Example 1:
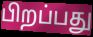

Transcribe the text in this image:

பிறப்பது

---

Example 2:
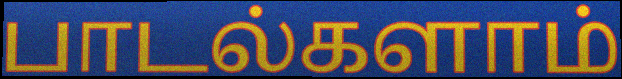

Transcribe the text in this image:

பாடல்களாம்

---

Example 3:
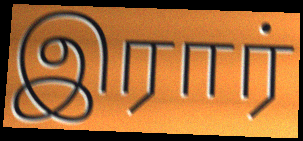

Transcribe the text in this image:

இரார்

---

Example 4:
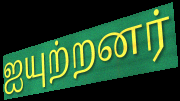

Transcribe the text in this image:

ஐயுற்றனர்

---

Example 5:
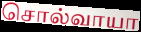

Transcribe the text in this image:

சொல்வாயா